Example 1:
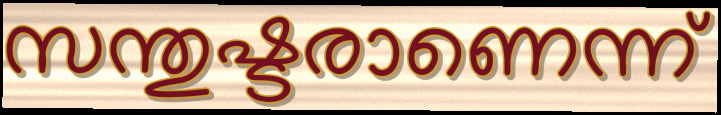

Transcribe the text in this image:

സന്തുഷ്ടരാണെന്ന്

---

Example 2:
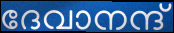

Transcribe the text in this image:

ദേവാനന്ദ്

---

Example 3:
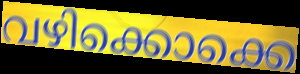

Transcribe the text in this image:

വഴിക്കൊക്കെ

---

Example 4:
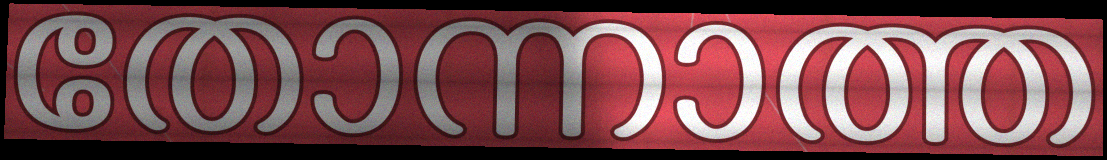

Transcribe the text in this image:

തോന്നാത്ത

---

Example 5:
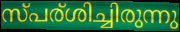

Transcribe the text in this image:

സ്പര്ശിച്ചിരുന്നു